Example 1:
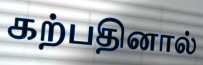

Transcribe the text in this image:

கற்பதினால்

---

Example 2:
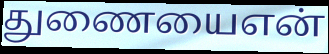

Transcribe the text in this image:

துணையைஎன்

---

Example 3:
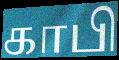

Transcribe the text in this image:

காபி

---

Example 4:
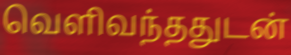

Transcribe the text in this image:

வெளிவந்ததுடன்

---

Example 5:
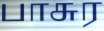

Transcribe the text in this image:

பாசுர